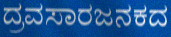
ದ್ರವಸಾರಜನಕದ